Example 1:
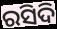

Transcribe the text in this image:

ରସିଦି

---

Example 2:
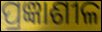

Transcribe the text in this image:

ପ୍ରଜ୍ଞାଶୀଳ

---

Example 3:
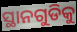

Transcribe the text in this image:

ସ୍ଥାନଗୁଡିକୁ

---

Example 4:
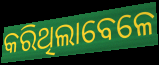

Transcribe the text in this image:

କରିଥିଲାବେଳେ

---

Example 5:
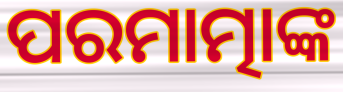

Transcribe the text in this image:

ପରମାତ୍ମାଙ୍କ